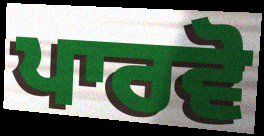
ਪਾਰਵੋ